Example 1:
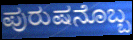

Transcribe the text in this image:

ಪುರುಷನೊಬ್ಬ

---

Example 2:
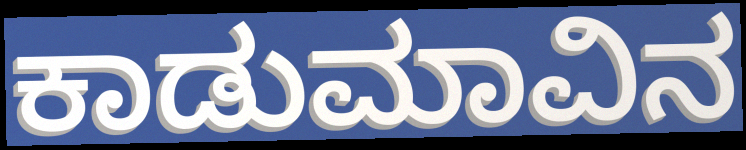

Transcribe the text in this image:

ಕಾಡುಮಾವಿನ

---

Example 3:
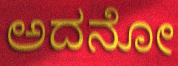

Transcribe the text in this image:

ಅದನೋ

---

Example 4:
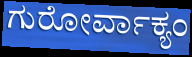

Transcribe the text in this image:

ಗುರೋರ್ವಾಕ್ಯಂ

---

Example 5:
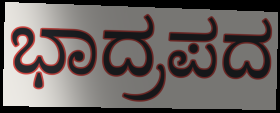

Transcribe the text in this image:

ಭಾದ್ರಪದ